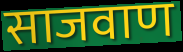
साजवाण